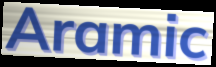
Aramic